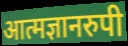
आत्मज्ञानरुपी